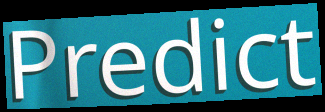
Predict